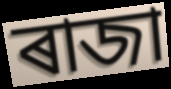
ৰাজা